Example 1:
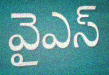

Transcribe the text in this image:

వైఎస్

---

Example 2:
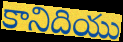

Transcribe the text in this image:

కానిదియు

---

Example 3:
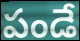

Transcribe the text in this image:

పండే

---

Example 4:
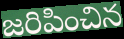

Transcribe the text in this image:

జరిపించిన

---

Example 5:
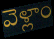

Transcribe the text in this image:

వెళ్లాం